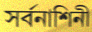
সর্বনাশিনী